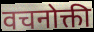
वचनोक्ती